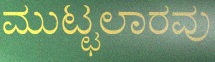
ಮುಟ್ಟಲಾರವು